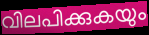
വിലപിക്കുകയും